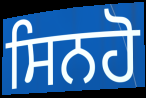
ਸਿਨਹੋ